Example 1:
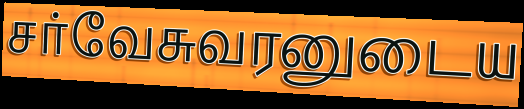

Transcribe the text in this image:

சர்வேசுவரனுடைய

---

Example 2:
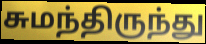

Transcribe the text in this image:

சுமந்திருந்து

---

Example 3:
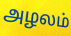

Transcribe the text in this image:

அழலம்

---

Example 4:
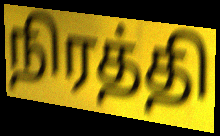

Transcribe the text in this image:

நிரத்தி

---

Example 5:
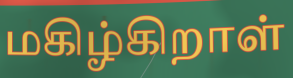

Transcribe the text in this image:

மகிழ்கிறாள்